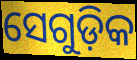
ସେଗୁଡ଼ିକ